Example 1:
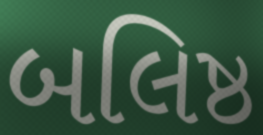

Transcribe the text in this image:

બલિષ્ઠ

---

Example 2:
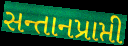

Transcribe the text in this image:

સન્તાનપ્રાપ્તી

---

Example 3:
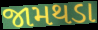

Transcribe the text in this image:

જામથડા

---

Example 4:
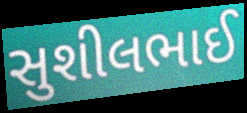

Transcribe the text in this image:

સુશીલભાઈ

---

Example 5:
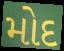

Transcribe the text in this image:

મોદ